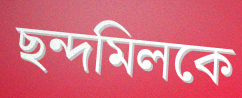
ছন্দমিলকে